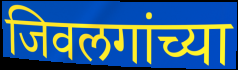
जिवलगांच्या